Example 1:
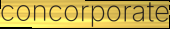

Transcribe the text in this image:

concorporate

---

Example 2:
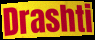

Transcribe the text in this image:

Drashti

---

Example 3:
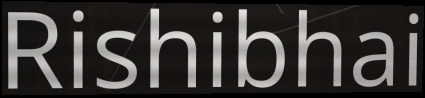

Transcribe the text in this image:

Rishibhai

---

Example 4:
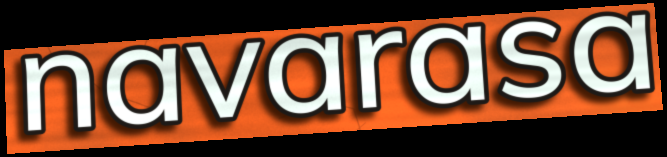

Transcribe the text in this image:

navarasa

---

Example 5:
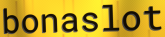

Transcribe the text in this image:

bonaslot